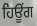
ਹਿਊੰਗ